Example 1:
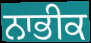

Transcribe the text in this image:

ਨਾਭੀਕ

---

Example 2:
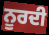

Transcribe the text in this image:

ਨੂਰਦੀ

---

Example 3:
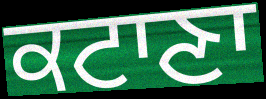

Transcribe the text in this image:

ਕਟਾਣਾ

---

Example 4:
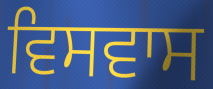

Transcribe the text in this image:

ਵਿਸਵਾਸ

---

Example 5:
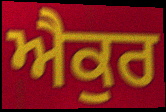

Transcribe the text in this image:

ਐਕੁਰ